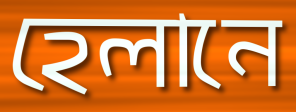
হেলানে